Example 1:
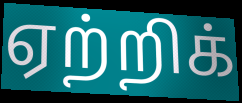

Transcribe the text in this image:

ஏற்றிக்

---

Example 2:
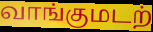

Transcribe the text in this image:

வாங்குமடற்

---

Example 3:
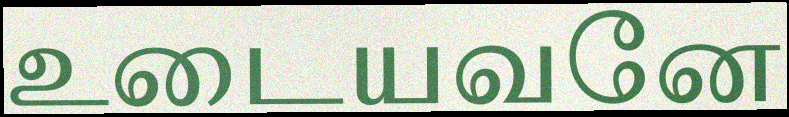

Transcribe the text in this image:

உடையவனே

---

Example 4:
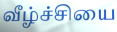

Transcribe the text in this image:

வீழ்ச்சியை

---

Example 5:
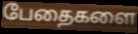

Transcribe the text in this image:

பேதைகளை